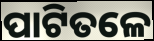
ପାଟିତଳେ